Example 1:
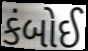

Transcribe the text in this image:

કંબોઈ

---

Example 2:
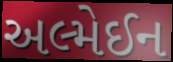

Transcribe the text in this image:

અલ્મેઈન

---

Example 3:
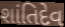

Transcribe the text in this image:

શાંતિદેવ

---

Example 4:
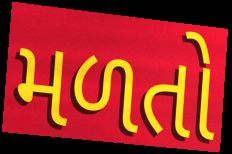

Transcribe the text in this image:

મળતો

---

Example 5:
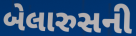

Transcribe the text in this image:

બેલારુસની